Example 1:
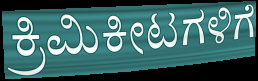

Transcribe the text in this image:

ಕ್ರಿಮಿಕೀಟಗಳಿಗೆ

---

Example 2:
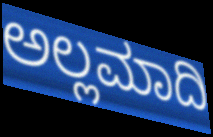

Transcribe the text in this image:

ಅಲ್ಲಮಾದಿ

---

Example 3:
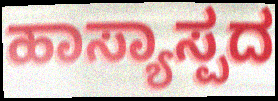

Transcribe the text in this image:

ಹಾಸ್ಯಾಸ್ಪದ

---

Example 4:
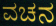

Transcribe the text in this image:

ವಚನ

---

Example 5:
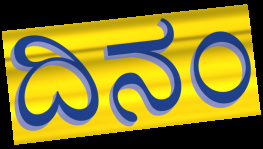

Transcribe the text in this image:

ದಿನಂ